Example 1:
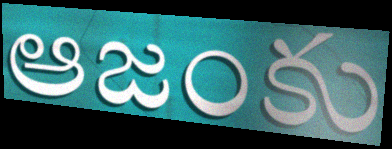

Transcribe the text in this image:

ఆజంకు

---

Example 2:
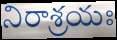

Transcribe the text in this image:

నిరాశ్రయః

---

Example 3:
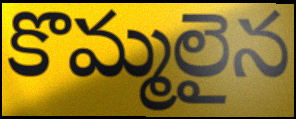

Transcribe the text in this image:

కొమ్మలైన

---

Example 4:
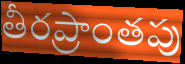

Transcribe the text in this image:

తీరప్రాంతపు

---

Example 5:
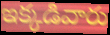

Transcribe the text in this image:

ఇక్కడివారు